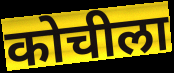
कोचीला